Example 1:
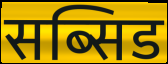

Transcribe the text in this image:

सब्सिड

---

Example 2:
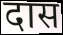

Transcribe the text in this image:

दास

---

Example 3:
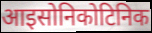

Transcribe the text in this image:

आइसोनिकोटिनिक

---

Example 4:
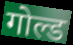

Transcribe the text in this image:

गोल्ड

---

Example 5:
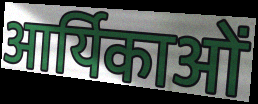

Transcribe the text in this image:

आर्यिकाओं